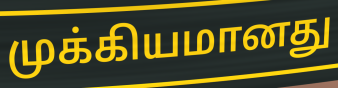
முக்கியமானது